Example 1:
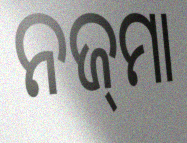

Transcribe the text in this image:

ନଜ୍‌ମା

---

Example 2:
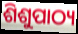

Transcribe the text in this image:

ଶିଶୁପାଠ୍ୟ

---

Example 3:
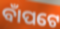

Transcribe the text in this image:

ବାଁପଟେ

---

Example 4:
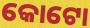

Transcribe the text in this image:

କୋଟୋ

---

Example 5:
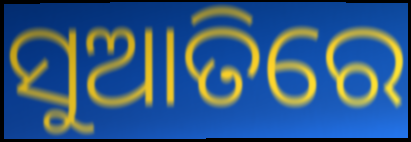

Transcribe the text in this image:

ସୁଆତିରେ